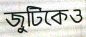
জুটিকেও